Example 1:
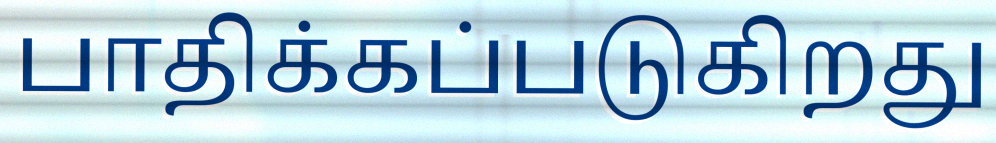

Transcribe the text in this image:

பாதிக்கப்படுகிறது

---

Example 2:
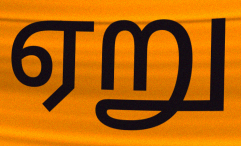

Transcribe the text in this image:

ஏறு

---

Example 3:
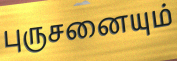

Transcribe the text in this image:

புருசனையும்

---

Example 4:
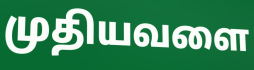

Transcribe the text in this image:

முதியவளை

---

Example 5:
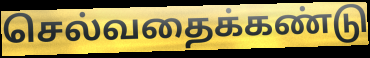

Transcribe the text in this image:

செல்வதைக்கண்டு